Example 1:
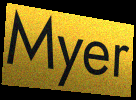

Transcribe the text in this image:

Myer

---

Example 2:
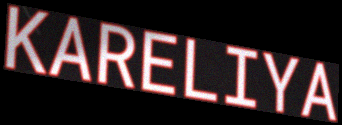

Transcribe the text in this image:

KARELIYA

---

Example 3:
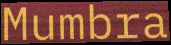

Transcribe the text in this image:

Mumbra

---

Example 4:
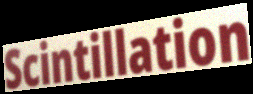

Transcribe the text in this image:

Scintillation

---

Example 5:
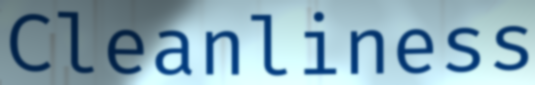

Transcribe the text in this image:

Cleanliness